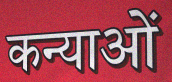
कन्‍याओं